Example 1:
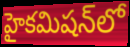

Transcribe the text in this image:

హైకమిషన్‌లో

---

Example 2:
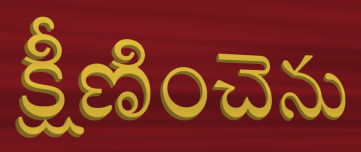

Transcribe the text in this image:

క్షీణించెను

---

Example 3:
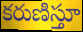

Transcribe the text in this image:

కరుణిస్తూ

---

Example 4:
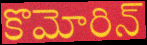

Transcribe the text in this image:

కొమోరిన్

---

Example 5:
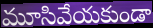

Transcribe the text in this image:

మూసివేయకుండా